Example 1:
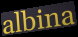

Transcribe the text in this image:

albina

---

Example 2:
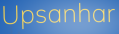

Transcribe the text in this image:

Upsanhar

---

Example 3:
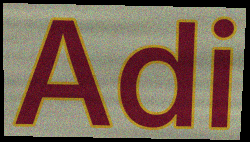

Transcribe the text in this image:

Adi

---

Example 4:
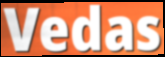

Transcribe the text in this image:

Vedas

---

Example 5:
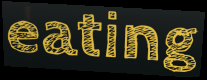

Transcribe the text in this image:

eating